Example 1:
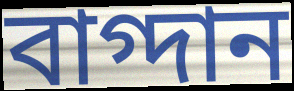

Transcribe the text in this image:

বাগ্দান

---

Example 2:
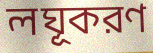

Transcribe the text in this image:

লঘূকরণ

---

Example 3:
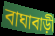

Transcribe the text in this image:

বাঘাবাড়ী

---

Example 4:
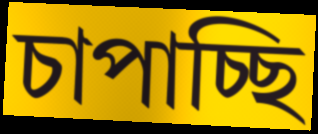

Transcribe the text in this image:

চাপাচ্ছি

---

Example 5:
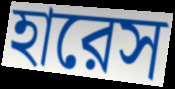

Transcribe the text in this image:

হারেস